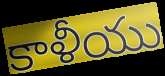
కాళీయు